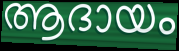
ആദായം